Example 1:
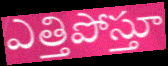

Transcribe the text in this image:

ఎత్తిపోస్తూ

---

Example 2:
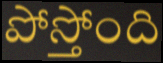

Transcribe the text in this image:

పోస్తోంది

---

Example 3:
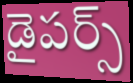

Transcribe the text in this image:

డైపర్స్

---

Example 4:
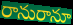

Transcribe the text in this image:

రానురానూ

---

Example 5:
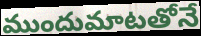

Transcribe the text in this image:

ముందుమాటతోనే